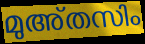
മുഅ്തസിം